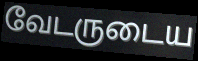
வேடருடைய